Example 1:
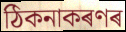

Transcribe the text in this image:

ঠিকনাকৰণৰ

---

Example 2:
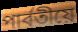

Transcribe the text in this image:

পাৰ্বতীয়ে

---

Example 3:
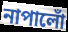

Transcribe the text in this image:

নাপালোঁ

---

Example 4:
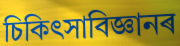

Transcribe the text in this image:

চিকিৎসাবিজ্ঞানৰ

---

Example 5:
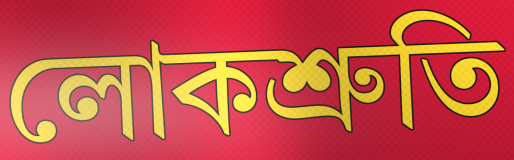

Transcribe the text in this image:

লোকশ্ৰুতি